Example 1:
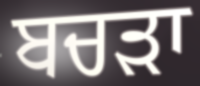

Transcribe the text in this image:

ਬਚੜਾ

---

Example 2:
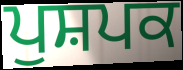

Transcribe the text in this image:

ਪੁਸ਼ਪਕ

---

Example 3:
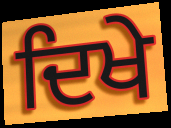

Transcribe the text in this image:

ਦਿਖੇ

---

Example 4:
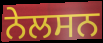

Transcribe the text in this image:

ਨੇਲਸਨ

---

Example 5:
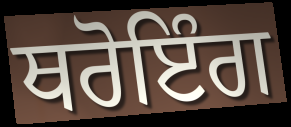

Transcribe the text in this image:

ਥਰੋਇੰਗ